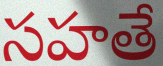
సహతే